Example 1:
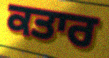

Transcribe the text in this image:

ਕਤਾਰ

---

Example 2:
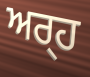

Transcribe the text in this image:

ਅਰ੍‍ਹ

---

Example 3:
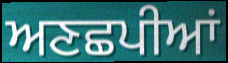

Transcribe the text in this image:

ਅਣਛਪੀਆਂ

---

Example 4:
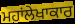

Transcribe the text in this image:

ਮਹਾਂਲੇਖਾਕਾਰ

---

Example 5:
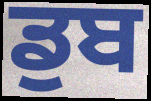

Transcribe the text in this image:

ਡੁਬ